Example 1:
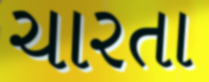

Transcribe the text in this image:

ચારતા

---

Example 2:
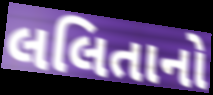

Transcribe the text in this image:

લલિતાનો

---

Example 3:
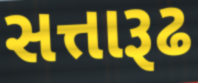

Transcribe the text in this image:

સત્તારૂઢ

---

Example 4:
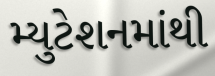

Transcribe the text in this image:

મ્યુટેશનમાંથી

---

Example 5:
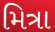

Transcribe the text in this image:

મિત્રા